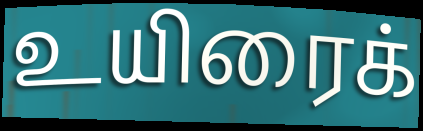
உயிரைக்